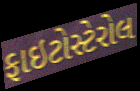
ફાઇટોસ્ટેરોલ